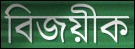
বিজয়ীক